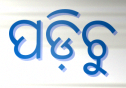
ପଡ଼ିଚୁ